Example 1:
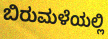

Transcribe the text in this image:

ಬಿರುಮಳೆಯಲ್ಲಿ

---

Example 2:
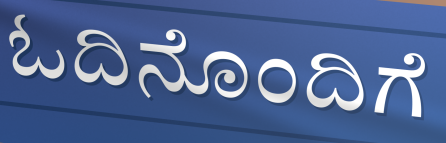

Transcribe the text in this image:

ಓದಿನೊಂದಿಗೆ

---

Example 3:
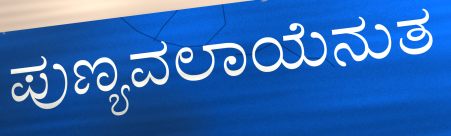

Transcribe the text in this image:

ಪುಣ್ಯವಲಾಯೆನುತ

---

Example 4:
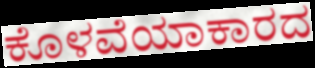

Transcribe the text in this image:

ಕೊಳವೆಯಾಕಾರದ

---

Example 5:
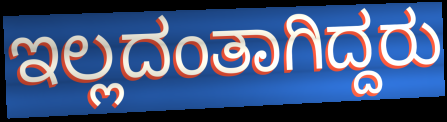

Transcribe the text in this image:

ಇಲ್ಲದಂತಾಗಿದ್ದರು